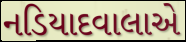
નડિયાદવાલાએ